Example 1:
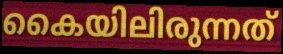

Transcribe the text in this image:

കൈയിലിരുന്നത്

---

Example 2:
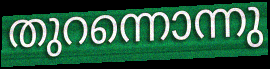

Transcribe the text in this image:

തുറന്നൊന്നു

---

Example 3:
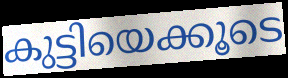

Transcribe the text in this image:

കുട്ടിയെക്കൂടെ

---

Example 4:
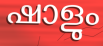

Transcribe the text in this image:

ഷാളും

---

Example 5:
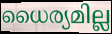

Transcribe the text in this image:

ധൈര്യമില്ല